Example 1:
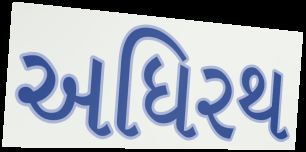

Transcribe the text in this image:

અધિરથ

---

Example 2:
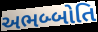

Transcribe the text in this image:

અભબ્બોતિ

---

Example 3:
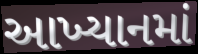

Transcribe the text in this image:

આખ્યાનમાં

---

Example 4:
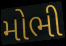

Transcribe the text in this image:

મોભી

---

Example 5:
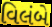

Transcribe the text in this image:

વિલંબે